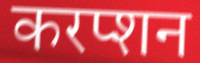
करप्शन